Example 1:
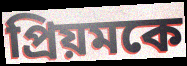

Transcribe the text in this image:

প্রিয়মকে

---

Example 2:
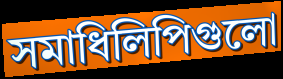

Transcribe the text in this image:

সমাধিলিপিগুলো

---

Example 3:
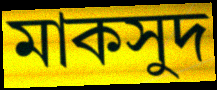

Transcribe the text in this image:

মাকসুদ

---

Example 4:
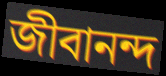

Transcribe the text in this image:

জীবানন্দ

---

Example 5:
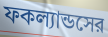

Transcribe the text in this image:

ফকল্যান্ডসের